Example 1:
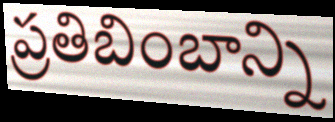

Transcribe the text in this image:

ప్రతిబింబాన్ని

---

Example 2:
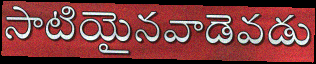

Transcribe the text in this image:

సాటియైనవాడెవడు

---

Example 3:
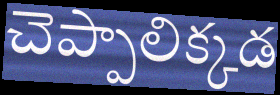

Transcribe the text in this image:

చెప్పాలిక్కడ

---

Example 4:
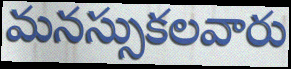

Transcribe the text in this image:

మనస్సుకలవారు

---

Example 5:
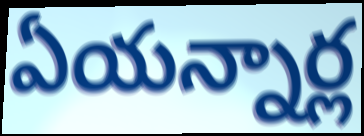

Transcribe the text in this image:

ఏయన్నార్ల